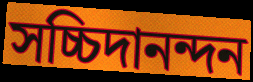
সচ্চিদানন্দন